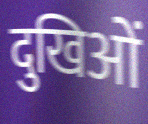
दुखिओं